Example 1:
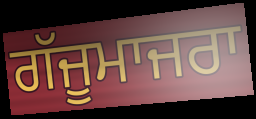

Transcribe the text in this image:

ਗੱਜੂਮਾਜਰਾ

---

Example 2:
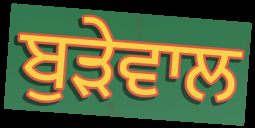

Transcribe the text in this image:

ਬੁੜੇਵਾਲ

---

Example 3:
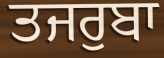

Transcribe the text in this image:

ਤਜਰੁਬਾ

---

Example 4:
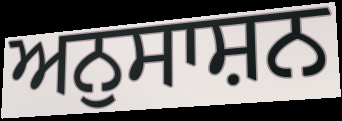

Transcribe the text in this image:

ਅਨੁਸਾਸ਼ਨ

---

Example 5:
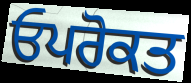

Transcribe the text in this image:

ਓਪਰੋਕਤ